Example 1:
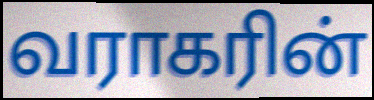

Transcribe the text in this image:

வராகரின்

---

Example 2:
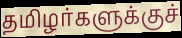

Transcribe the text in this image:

தமிழர்களுக்குச்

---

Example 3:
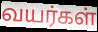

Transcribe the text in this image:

வயர்கள்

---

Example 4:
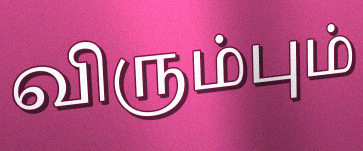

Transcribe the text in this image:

விரும்பும்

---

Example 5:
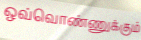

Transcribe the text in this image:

ஒவ்வொண்ணுக்கும்